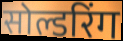
सोल्डरिंग